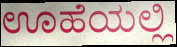
ಊಹೆಯಲ್ಲಿ